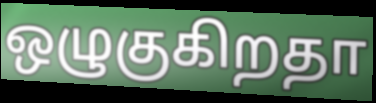
ஒழுகுகிறதா